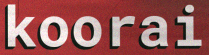
koorai